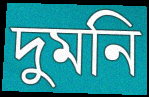
দুমনি